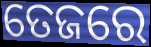
ତେଜରେ